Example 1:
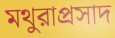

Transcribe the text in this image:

মথুরাপ্রসাদ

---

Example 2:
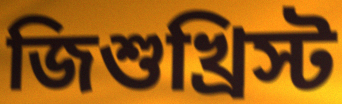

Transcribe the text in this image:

জিশুখ্রিস্ট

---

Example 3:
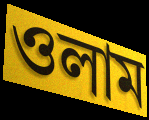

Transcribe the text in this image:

ওলাম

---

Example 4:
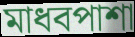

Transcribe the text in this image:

মাধবপাশা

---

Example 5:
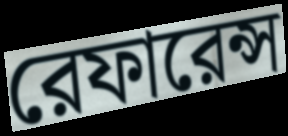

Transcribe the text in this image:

রেফারেন্স